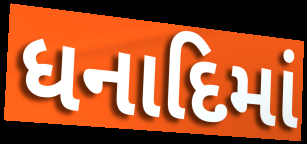
ધનાદિમાં